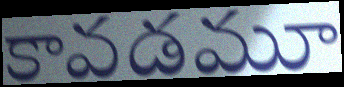
కావడమూ